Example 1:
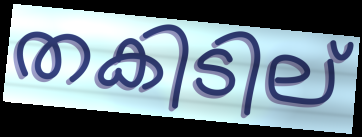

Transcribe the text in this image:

തകിടില്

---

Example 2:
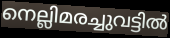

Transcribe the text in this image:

നെല്ലിമരച്ചുവട്ടിൽ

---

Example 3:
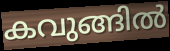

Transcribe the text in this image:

കവുങ്ങിൽ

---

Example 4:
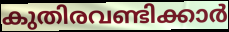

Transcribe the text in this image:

കുതിരവണ്ടിക്കാർ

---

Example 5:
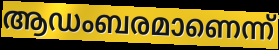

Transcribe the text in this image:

ആഡംബരമാണെന്ന്